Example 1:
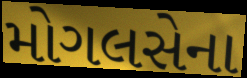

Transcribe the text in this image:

મોગલસેના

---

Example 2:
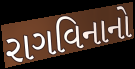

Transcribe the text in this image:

રાગવિનાનો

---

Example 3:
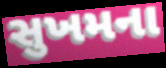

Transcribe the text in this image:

સુખમના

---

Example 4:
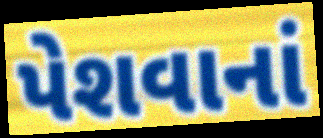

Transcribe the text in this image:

પેશવાનાં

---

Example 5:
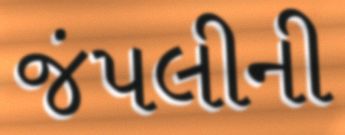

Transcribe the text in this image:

જંપલીની